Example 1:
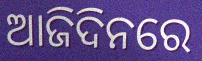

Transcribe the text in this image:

ଆଜିଦିନରେ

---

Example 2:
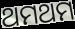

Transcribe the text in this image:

ଥମଥମ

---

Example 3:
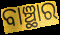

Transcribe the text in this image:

ବାଞ୍ଛାର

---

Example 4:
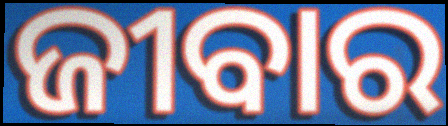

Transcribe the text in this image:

ଜୀବାର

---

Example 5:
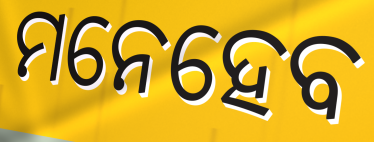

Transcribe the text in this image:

ମନେହେବ